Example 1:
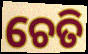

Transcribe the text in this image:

ଚେତି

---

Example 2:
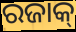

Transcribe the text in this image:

ରଜାକ୍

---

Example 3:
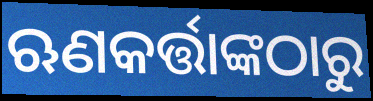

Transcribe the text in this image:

ଋଣକର୍ତ୍ତାଙ୍କଠାରୁ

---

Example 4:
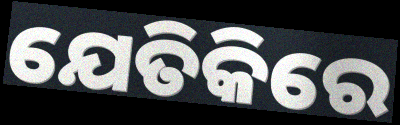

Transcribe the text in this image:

ଯେତିକିରେ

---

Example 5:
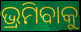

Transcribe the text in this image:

ଭ୍ରମିବାକୁ